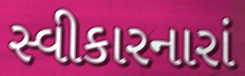
સ્વીકારનારાં